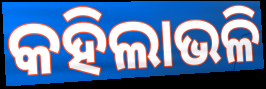
କହିଲାଭଳି